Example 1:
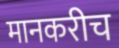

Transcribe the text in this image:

मानकरीच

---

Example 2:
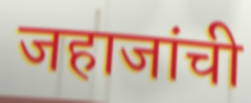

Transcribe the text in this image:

जहाजांची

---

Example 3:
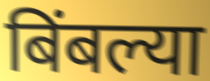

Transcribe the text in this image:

बिंबल्या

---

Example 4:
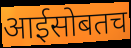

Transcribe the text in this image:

आईसोबतच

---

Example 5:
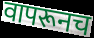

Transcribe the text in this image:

वापरूनच